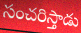
సంచరిస్తాడు